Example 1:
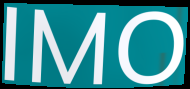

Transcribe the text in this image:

IMO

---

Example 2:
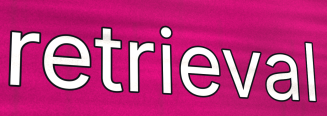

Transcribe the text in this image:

retrieval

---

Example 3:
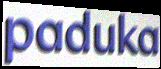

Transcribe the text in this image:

paduka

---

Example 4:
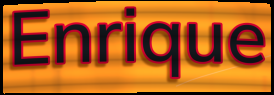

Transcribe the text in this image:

Enrique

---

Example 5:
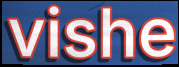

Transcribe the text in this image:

vishe